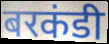
बरकंडी